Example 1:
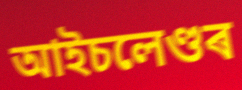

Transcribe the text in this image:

আইচলেণ্ডৰ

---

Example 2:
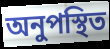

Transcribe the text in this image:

অনুপস্থিত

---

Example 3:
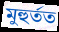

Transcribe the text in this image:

মুহুৰ্তত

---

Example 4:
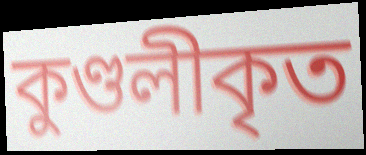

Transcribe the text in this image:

কুণ্ডলীকৃত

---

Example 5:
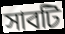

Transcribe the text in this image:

সাবটি